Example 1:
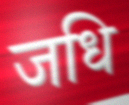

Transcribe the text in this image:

जधि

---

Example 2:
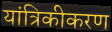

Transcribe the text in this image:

यांत्रिकीकरण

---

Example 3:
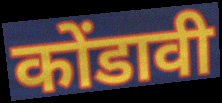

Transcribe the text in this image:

कोंडावी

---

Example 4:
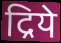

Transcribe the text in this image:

द्रिये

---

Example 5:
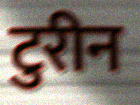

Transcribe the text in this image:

टुरीन